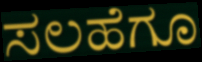
ಸಲಹೆಗೂ